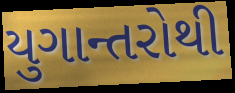
યુગાન્તરોથી